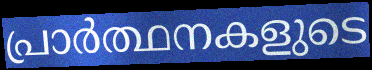
പ്രാർത്ഥനകളുടെ